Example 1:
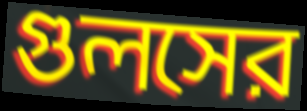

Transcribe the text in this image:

গুলসের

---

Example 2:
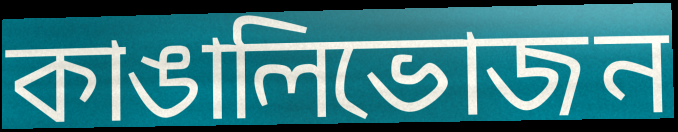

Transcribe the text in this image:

কাঙালিভোজন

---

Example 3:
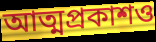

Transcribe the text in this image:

আত্মপ্রকাশও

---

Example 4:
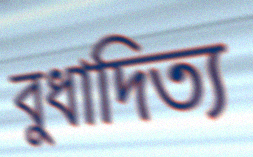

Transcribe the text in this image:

বুধাদিত্য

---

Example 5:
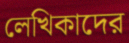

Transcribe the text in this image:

লেখিকাদের